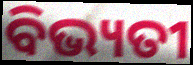
ବିଭ୍ୟତୀ